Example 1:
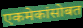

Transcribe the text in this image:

एकमेकांसोबत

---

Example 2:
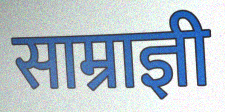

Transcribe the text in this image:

साम्राज्ञी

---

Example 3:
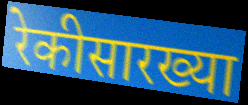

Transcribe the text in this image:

रेकीसारख्या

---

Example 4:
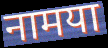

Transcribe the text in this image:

नामया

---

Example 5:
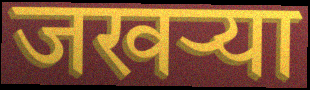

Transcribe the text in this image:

जखऱ्या